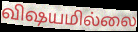
விஷயமில்லை